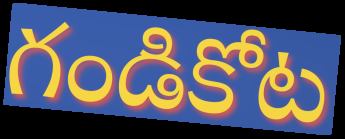
గండికోట